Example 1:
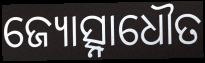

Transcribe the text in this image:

ଜ୍ୟୋତ୍ସ୍ନାଧୌତ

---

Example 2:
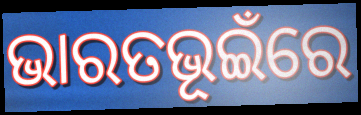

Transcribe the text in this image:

ଭାରତଭୂଇଁରେ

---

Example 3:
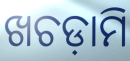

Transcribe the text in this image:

ଖଚଡ଼ାମି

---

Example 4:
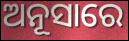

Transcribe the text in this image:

ଅନୂସାରେ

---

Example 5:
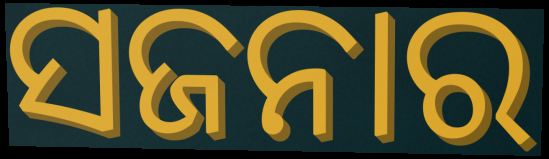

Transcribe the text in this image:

ସଜନାର